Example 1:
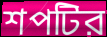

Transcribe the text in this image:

শপটির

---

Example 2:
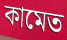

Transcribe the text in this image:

কামেত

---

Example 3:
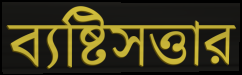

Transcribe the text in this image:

ব্যষ্টিসত্তার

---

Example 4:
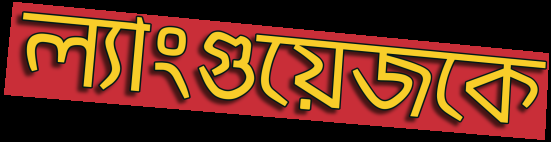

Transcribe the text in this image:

ল্যাংগুয়েজকে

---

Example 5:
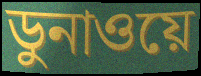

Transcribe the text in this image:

ডুনাওয়ে